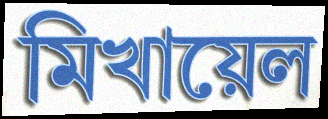
মিখায়েল